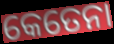
କେତେନା